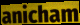
anicham